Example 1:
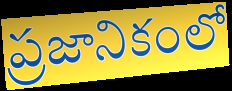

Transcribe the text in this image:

ప్రజానికంలో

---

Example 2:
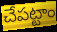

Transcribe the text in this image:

చేపట్టాం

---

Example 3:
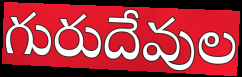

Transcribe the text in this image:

గురుదేవుల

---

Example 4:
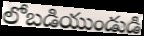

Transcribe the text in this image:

లోబడియుండుడి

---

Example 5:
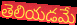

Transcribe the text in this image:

తెలియడమే